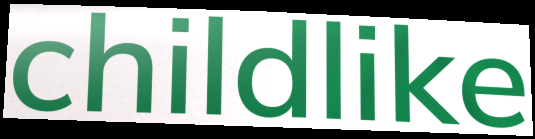
childlike